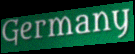
Germany